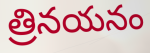
త్రినయనం